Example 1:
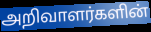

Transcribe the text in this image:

அறிவாளர்களின்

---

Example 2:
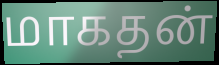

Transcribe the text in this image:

மாகதன்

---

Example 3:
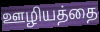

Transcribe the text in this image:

ஊழியத்தை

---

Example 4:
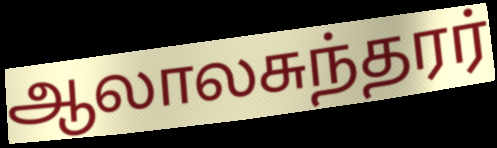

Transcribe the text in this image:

ஆலாலசுந்தரர்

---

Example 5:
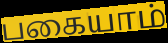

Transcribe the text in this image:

பகையாம்